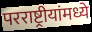
परराष्ट्रीयांमध्ये